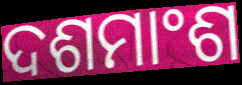
ଦଶମାଂଶ